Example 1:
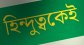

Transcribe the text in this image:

হিন্দুত্বকেই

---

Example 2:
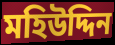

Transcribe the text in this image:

মহিউদ্দিন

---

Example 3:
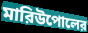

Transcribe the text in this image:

মারিউপোলের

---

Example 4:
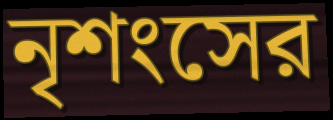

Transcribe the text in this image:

নৃশংসের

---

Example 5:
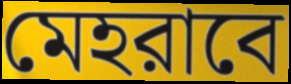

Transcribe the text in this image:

মেহরাবে